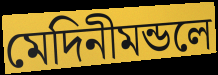
মেদিনীমন্ডলে